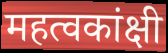
महत्वकांक्षी